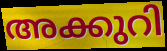
അക്കുറി